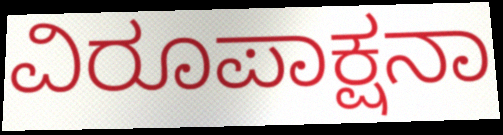
ವಿರೂಪಾಕ್ಷನಾ